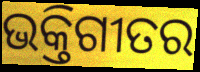
ଭକ୍ତିଗୀତର